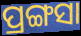
ପ୍ରଙ୍ଗସା